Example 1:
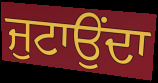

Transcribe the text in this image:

ਜੁਟਾਉਂਦਾ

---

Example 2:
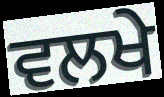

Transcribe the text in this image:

ਵਲਖੇ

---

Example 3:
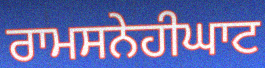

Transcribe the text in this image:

ਰਾਮਸਨੇਹੀਘਾਟ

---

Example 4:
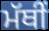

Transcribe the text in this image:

ਮੱਥੀਂ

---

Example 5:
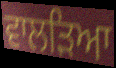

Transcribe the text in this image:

ਵਾਲੜਿਆ